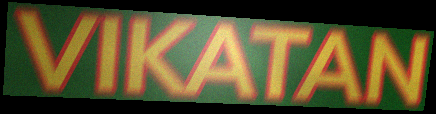
VIKATAN